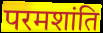
परमशांति